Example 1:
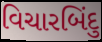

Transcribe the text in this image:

વિચારબિંદુ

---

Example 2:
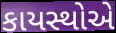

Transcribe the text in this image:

કાયસ્થોએ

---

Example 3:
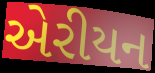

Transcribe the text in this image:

એરીયન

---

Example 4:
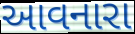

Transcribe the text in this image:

આવનારા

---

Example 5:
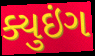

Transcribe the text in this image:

ક્યુઇંગ